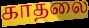
காதலை